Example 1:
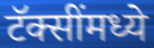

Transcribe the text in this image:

टॅक्सींमध्ये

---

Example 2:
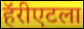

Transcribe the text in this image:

हॅरीएटला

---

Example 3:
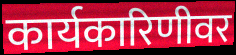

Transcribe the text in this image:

कार्यकारिणीवर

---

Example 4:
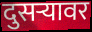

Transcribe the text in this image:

दुसऱ्यावर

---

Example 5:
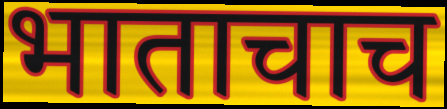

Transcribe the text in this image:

भाताचाच